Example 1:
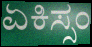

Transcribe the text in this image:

ಏಕಿಸ್ಸಂ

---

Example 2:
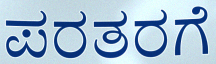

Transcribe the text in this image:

ಪರತರಗೆ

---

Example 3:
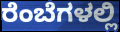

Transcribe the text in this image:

ರೆಂಬೆಗಳಲ್ಲಿ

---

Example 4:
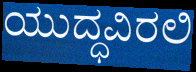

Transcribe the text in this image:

ಯುದ್ಧವಿರಲಿ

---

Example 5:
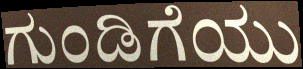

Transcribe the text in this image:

ಗುಂಡಿಗೆಯು